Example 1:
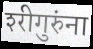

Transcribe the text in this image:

श्रीगुरुंना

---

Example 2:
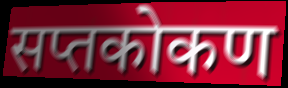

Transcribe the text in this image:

सप्तकोकण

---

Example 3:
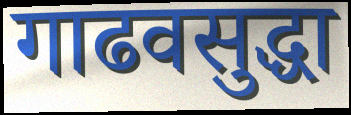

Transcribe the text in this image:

गाढवसुद्धा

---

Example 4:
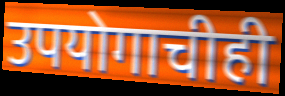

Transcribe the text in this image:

उपयोगाचीही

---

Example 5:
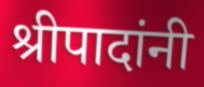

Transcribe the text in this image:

श्रीपादांनी